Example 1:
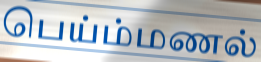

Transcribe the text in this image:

பெய்ம்மணல்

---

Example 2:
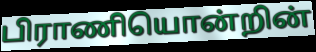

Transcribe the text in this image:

பிராணியொன்றின்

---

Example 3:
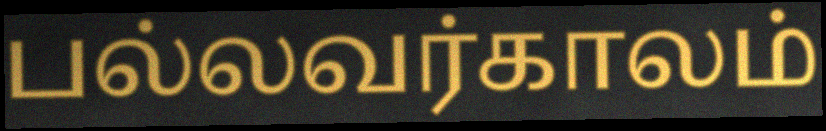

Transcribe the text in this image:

பல்லவர்காலம்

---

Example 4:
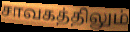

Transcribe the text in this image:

சாவகத்திலும்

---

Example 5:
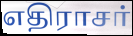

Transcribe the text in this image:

எதிராசர்